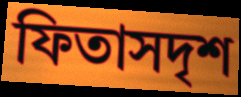
ফিতাসদৃশ